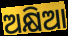
ଅକ୍ଷିଆ